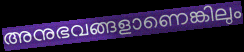
അനുഭവങ്ങളാണെങ്കിലും